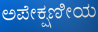
ಅಪೇಕ್ಷಣೀಯ